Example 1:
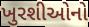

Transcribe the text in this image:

ખુરશીઓનો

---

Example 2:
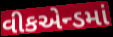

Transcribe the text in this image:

વીકએન્ડમાં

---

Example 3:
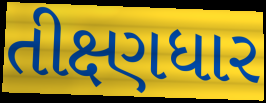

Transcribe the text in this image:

તીક્ષ્ણધાર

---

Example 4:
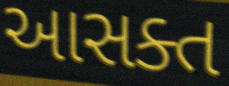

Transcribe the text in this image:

આસક્ત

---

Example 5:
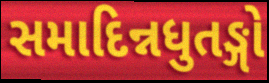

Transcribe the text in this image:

સમાદિન્નધુતઙ્ગો